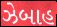
ઝેબાહ